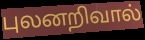
புலனறிவால்